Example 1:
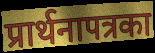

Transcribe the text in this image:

प्रार्थनापत्रका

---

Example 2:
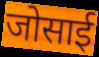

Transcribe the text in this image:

जोसाई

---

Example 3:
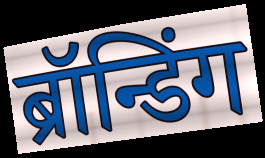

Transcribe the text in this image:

ब्रॉन्डिंग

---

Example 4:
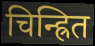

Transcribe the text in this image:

चिन्ह्रित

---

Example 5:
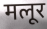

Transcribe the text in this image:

मलूर